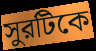
সুরটিকে